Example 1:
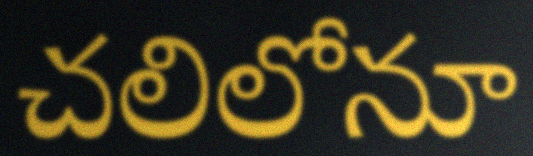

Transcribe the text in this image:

చలిలోనూ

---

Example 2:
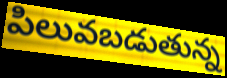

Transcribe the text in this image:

పిలువబడుతున్న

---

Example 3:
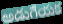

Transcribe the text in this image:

అడుగేయక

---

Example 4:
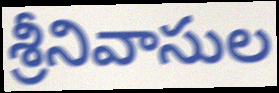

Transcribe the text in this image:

శ్రీనివాసుల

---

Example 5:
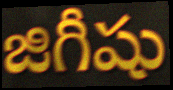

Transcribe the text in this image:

జిగీషు